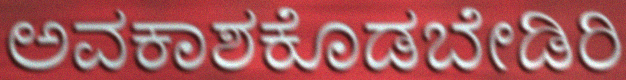
ಅವಕಾಶಕೊಡಬೇಡಿರಿ